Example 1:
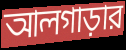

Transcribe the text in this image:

আলগাড়ার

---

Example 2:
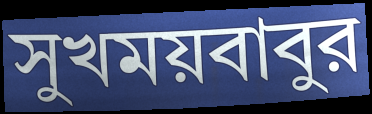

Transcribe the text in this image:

সুখময়বাবুর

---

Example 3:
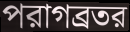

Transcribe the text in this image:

পরাগব্রতর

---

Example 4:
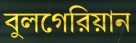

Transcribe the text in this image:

বুলগেরিয়ান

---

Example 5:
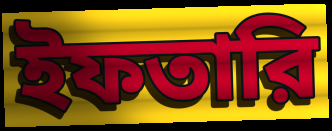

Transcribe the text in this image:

ইফতারি